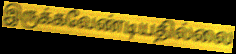
இருக்கவேண்டியதில்லை